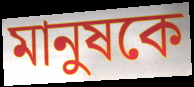
মানুষকে